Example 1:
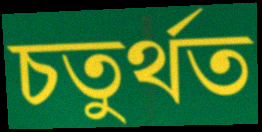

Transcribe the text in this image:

চতুর্থত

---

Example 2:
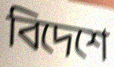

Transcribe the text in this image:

বিদেশে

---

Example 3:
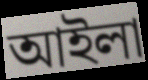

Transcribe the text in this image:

আইলা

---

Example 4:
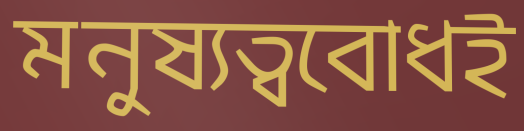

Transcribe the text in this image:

মনুষ্যত্ববোধই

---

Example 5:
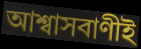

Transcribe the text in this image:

আশ্বাসবাণীই